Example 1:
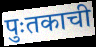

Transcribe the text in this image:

पुःतकाची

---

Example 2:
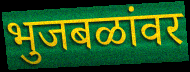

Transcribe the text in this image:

भुजबळांवर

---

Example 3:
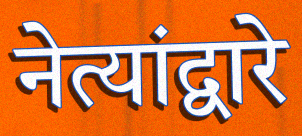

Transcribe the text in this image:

नेत्यांद्वारे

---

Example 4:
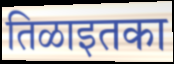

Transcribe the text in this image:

तिळाइतका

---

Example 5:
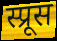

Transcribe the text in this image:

स्प्रूस